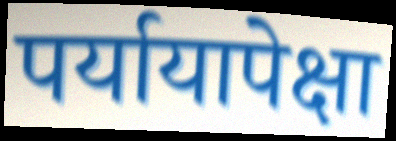
पर्यायापेक्षा